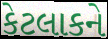
કેટલાકને